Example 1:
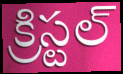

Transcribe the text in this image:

క్రిస్టల్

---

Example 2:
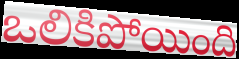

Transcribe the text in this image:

ఒలికిపోయింది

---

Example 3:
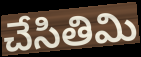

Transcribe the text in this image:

చేసితిమి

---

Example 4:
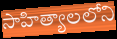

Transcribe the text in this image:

సాహిత్యాలలోని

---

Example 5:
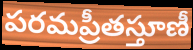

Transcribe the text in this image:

పరమప్రీతస్తూణీ